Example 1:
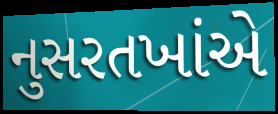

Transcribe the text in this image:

નુસરતખાંએ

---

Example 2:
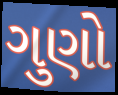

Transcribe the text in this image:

ગુણો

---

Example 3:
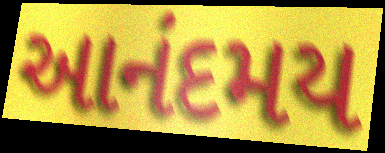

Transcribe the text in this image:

આનંદમય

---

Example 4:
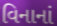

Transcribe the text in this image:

વિનાનાં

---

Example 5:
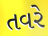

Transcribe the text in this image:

તવરે